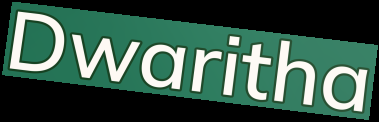
Dwaritha